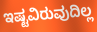
ಇಷ್ಟವಿರುವುದಿಲ್ಲ